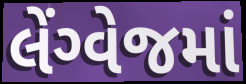
લેંગ્વેજમાં